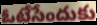
ఓటేసేందుకు